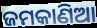
ଜମକାଣିଆ